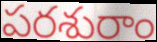
పరశురాం